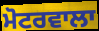
ਮੋਟਰਵਾਲਾ